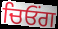
ਚਿਓਂਗ